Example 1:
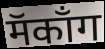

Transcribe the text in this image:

मॅकाँग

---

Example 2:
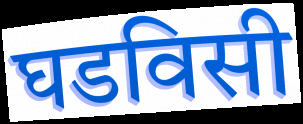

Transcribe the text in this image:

घडविसी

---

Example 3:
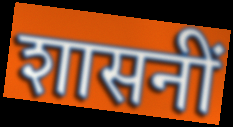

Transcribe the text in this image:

शासनीं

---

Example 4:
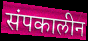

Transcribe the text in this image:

संपकालीन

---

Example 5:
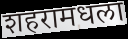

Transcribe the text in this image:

शहरामधला